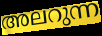
അലറുന്ന